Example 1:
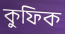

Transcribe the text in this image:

কুফিক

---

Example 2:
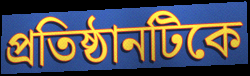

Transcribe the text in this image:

প্রতিষ্ঠানটিকে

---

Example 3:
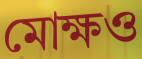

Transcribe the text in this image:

মোক্ষও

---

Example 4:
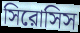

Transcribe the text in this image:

সিরোসিস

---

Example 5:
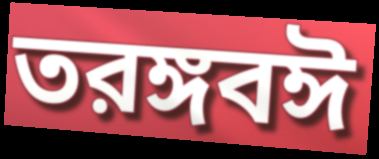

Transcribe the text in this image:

তরঙ্গবঈ